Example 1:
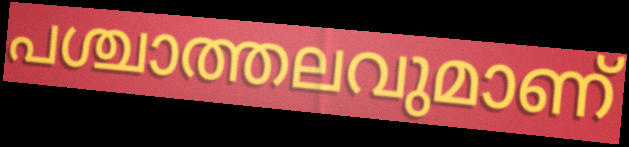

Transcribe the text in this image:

പശ്ചാത്തലവുമാണ്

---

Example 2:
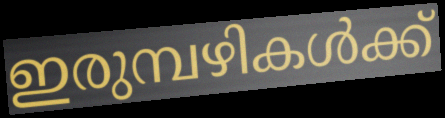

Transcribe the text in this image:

ഇരുമ്പഴികൾക്ക്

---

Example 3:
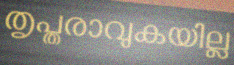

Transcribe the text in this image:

തൃപ്തരാവുകയില്ല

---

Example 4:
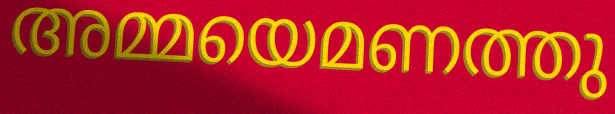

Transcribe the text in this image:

അമ്മയെമണത്തു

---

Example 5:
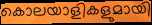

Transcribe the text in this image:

കൊലയാളികളുമായി